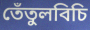
তেঁতুলবিচি